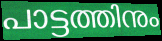
പാട്ടത്തിനും